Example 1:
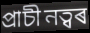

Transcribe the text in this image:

প্ৰাচীনত্বৰ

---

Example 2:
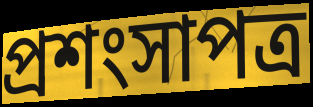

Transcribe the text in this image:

প্ৰশংসাপত্ৰ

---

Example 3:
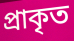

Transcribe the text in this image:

প্ৰাকৃত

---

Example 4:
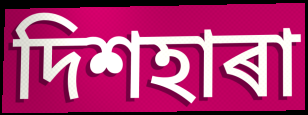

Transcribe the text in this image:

দিশহাৰা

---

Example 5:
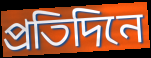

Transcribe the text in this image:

প্ৰতিদিনে